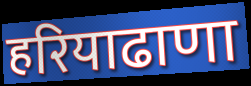
हरियाढाणा